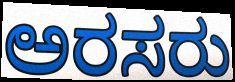
ಅರಸರು